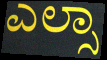
ಎಲ್ಸಾ